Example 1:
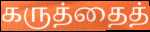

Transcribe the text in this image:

கருத்தைத்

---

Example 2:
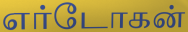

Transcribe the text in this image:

எர்டோகன்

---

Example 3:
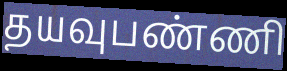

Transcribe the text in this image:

தயவுபண்ணி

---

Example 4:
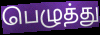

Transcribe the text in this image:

பெழுத்து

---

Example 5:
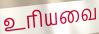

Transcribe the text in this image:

உரியவை